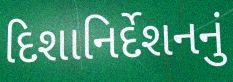
દિશાનિર્દેશનનું